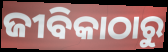
ଜୀବିକାଠାରୁ